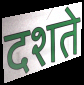
दशते